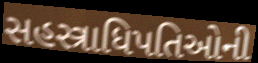
સહસ્ત્રાધિપતિઓની